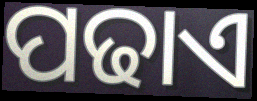
ପଢାଏ